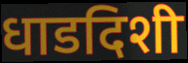
धाडदिशी